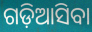
ଗଡ଼ିଆସିବା